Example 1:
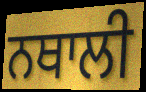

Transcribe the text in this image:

ਨਥਾਲੀ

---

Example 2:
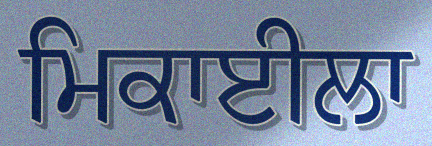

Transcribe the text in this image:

ਮਿਕਾਈਲਾ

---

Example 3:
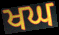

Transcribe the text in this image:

ਖਘ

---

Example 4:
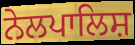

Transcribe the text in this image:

ਨੇਲਪਾਲਿਸ਼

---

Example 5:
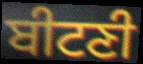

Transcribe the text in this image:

ਬੀਟਣੀ